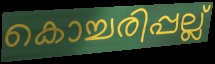
കൊച്ചരിപ്പല്ല്